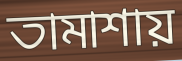
তামাশায়